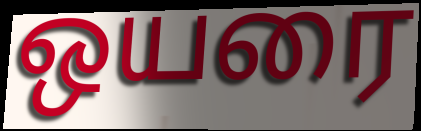
ஒயரை